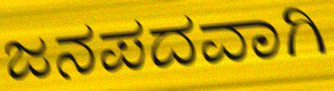
ಜನಪದವಾಗಿ